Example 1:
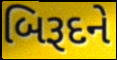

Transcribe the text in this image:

બિરૂદને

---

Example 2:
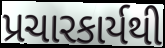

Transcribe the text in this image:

પ્રચારકાર્યથી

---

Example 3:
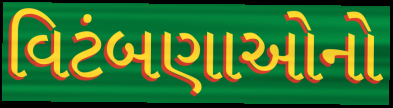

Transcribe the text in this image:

વિટંબણાઓનો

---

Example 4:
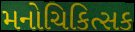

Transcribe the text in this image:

મનોચિકિત્સક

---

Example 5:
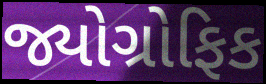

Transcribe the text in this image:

જ્યોગ્રોફિક